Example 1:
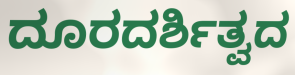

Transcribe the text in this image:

ದೂರದರ್ಶಿತ್ವದ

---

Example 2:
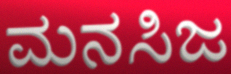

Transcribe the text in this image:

ಮನಸಿಜ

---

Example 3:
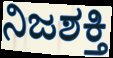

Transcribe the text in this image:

ನಿಜಶಕ್ತಿ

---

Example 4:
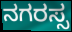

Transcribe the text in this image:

ನಗರಸ್ಸ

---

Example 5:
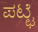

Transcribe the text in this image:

ಪಟ್ಟೆ